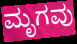
ಮೃಗವು